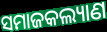
ସମାଜକଲ୍ୟାଣ